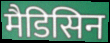
मैडिसिन